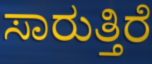
ಸಾರುತ್ತಿರೆ